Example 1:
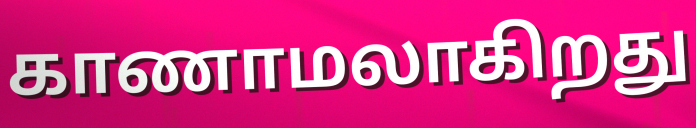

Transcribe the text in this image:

காணாமலாகிறது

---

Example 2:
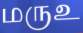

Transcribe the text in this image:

மருஉ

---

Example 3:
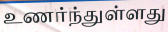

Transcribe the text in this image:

உணர்ந்துள்ளது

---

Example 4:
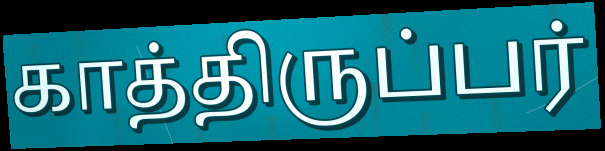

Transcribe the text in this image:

காத்திருப்பர்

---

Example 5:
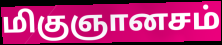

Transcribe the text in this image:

மிகுஞானசம்